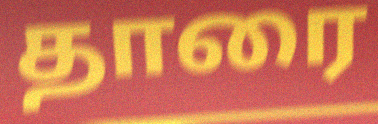
தாரை